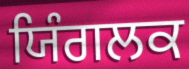
ਯਿੰਗਲਕ